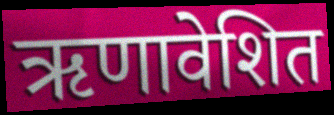
ऋणावेशित